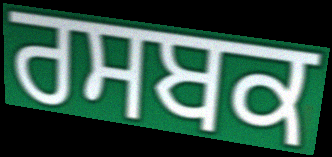
ਰਸਬਕ